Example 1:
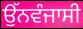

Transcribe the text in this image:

ਉੱਨਵੰਜਾਸੀ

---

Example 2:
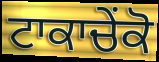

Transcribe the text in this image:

ਟਾਕਾਚੇਂਕੋ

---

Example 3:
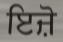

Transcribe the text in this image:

ਇਜ਼ੋ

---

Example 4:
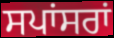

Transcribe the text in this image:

ਸਪਾਂਸਰਾਂ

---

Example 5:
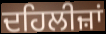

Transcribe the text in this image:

ਦਹਿਲੀਜ਼ਾਂ